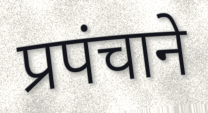
प्रपंचाने